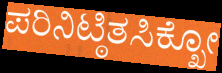
ಪರಿನಿಟ್ಠಿತಸಿಕ್ಖೋ